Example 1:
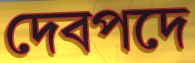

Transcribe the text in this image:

দেবপদে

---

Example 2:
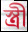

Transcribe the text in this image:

স্ত্রী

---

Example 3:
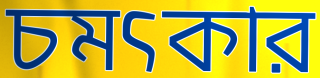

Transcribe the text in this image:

চমৎকার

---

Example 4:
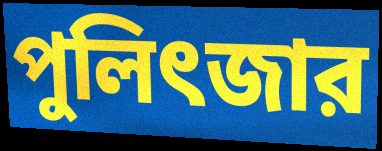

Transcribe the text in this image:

পুলিৎজার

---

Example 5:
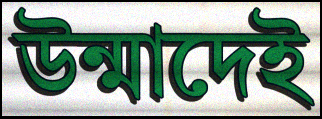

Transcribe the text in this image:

উন্মাদেই